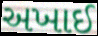
અખાઈ